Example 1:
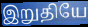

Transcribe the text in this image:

இறுதியே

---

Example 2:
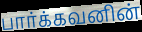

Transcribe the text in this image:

பார்க்கவனின்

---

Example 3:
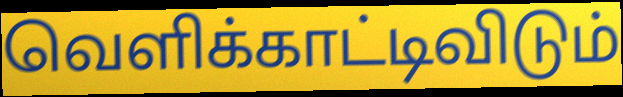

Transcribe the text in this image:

வெளிக்காட்டிவிடும்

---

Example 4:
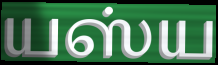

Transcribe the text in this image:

யஸ்ய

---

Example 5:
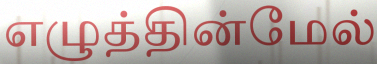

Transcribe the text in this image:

எழுத்தின்மேல்